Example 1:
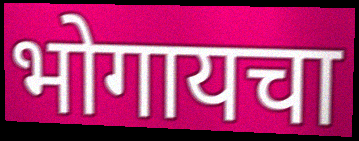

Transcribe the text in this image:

भोगायचा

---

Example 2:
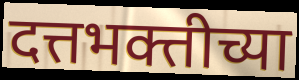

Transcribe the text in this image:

दत्तभक्तीच्या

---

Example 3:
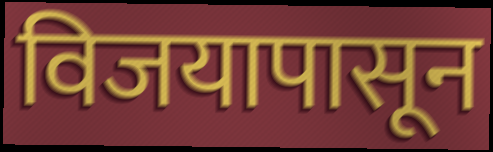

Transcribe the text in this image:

विजयापासून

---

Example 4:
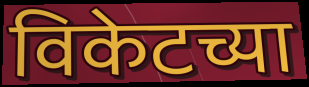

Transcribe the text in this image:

विकेटच्या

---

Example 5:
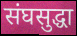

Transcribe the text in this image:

संघसुद्धा